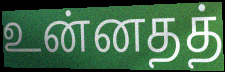
உன்னதத்